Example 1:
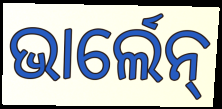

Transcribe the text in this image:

ଭାର୍ଲେନ୍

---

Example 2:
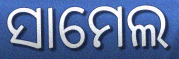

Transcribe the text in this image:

ସାମେଲ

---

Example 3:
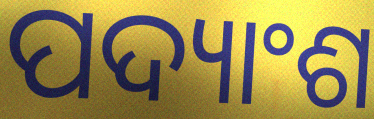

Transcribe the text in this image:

ପଦ୍ୟାଂଶ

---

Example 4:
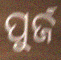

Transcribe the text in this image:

ପୁର୍ଜ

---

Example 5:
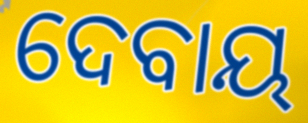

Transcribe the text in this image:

ଦେବାୟ